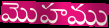
మొహము